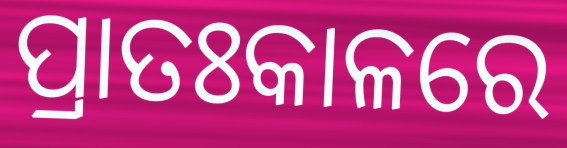
ପ୍ରାତଃକାଳରେ